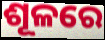
ଶୂଳରେ